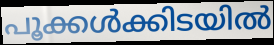
പൂക്കൾക്കിടയിൽ